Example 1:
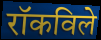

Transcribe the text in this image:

रॉकविले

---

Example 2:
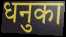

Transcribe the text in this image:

धनुका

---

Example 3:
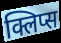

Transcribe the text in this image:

क्लिप्स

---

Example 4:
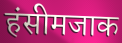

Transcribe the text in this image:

हंसीमजाक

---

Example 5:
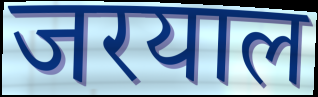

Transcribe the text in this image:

जरयाल